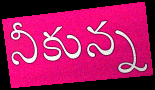
నీకున్న